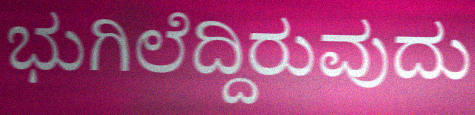
ಭುಗಿಲೆದ್ದಿರುವುದು